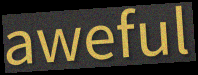
aweful